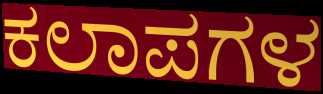
ಕಲಾಪಗಳ